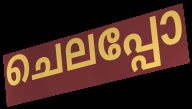
ചെലപ്പോ